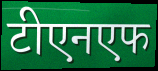
टीएनएफ